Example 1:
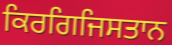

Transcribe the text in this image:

ਕਿਰਗਿਜਿਸਤਾਨ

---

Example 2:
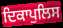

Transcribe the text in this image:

ਦਿਕਾਪੁਲਿਸ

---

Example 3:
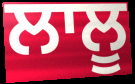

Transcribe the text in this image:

ਲਾਲੂ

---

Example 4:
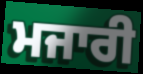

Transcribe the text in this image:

ਮਜਾਰੀ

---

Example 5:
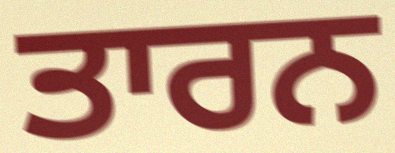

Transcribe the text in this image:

ਤਾਰਨ